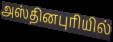
அஸ்தினபுரியில்